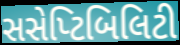
સસેપ્ટિબિલિટી